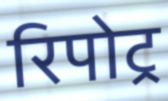
रिपोट्र